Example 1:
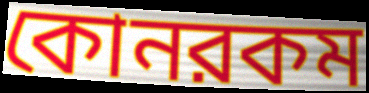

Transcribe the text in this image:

কোনরকম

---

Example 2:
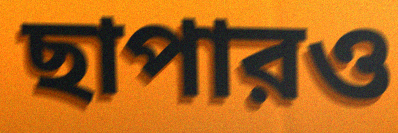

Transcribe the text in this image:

ছাপারও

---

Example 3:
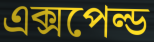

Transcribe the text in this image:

এক্সপেল্ড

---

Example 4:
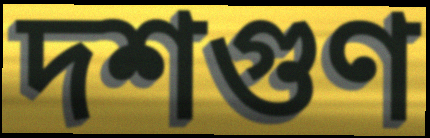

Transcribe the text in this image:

দশগুণ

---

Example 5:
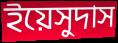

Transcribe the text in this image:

ইয়েসুদাস